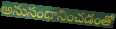
అనుసంధానించడంతో